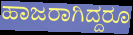
ಹಾಜರಾಗಿದ್ದರೂ